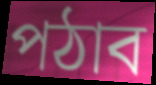
পঠাব